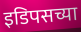
इडिपसच्या